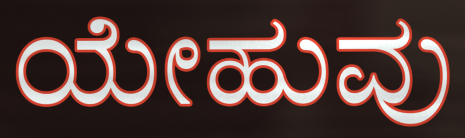
ಯೇಹುವು